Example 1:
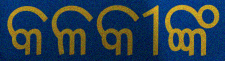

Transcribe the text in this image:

କଳକୀଙ୍କ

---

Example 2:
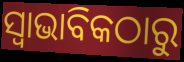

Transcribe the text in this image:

ସ୍ୱାଭାବିକଠାରୁ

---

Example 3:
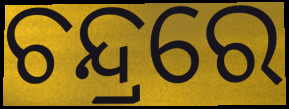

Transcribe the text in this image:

ଚନ୍ଦ୍ରରେ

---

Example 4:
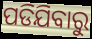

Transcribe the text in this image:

ପଡିଯିବାରୁ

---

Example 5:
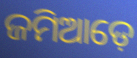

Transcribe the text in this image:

ଜମିଆଡ଼େ